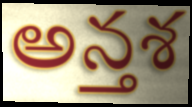
అన్తశ